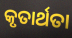
କୃତାର୍ଥତା